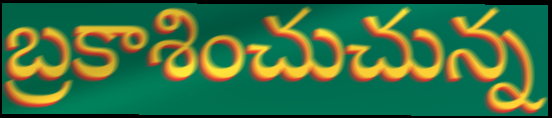
బ్రకాశించుచున్న